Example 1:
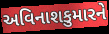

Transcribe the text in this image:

અવિનાશકુમારને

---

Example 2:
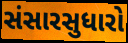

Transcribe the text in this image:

સંસારસુધારો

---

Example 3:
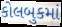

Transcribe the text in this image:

કોલબુકમાં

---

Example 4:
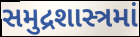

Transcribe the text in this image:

સમુદ્રશાસ્ત્રમાં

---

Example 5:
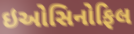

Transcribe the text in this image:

ઇઓસિનોફિલ